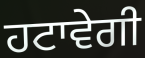
ਹਟਾਵੇਗੀ